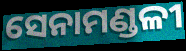
ସେନାମଣ୍ଡଳୀ